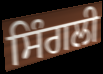
ਸਿੰਗਲੀ